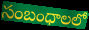
సంబంధాలలో